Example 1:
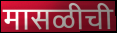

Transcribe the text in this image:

मासळीची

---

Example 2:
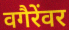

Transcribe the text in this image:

वगैरेंवर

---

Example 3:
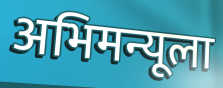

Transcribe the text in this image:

अभिमन्यूला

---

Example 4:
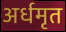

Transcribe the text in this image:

अर्धमृत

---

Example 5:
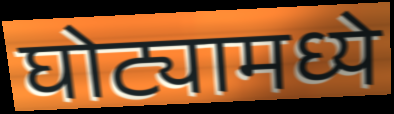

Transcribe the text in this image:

घोट्यामध्ये